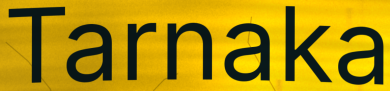
Tarnaka